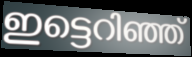
ഇട്ടെറിഞ്ഞ്